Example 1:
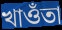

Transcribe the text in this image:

খাওঁতা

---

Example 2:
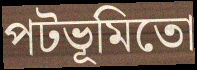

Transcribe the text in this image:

পটভূমিতো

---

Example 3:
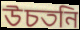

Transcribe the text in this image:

উচতনি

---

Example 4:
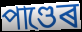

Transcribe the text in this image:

পাণ্ডেৰ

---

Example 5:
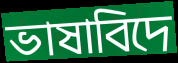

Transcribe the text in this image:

ভাষাবিদে